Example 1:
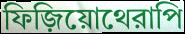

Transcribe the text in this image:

ফিজ়িয়োথেরাপি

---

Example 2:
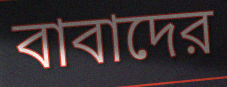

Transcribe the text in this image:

বাবাদের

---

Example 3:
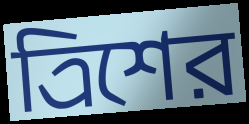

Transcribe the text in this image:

ত্রিশের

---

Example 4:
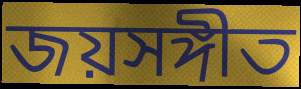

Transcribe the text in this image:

জয়সঙ্গীত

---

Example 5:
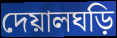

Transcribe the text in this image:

দেয়ালঘড়ি